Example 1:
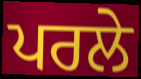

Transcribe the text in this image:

ਪਰਲੇ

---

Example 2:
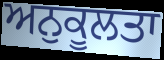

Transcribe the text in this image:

ਅਨੁਕੂਲਤਾ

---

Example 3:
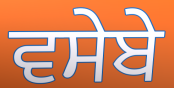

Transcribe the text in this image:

ਵਸੇਬੇ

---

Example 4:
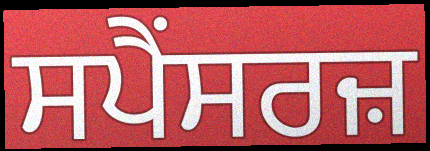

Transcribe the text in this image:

ਸਪੈਂਸਰਜ਼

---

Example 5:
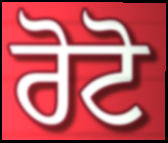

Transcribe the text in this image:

ਰੋਟੋ